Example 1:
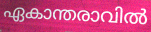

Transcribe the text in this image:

ഏകാന്തരാവിൽ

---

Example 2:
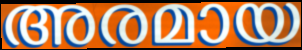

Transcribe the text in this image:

അരമായ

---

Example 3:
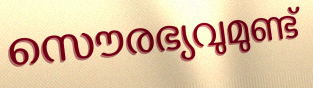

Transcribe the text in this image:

സൌരഭ്യവുമുണ്ട്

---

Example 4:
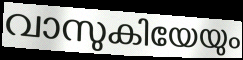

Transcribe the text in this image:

വാസുകിയേയും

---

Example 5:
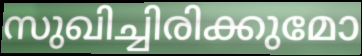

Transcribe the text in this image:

സുഖിച്ചിരിക്കുമോ